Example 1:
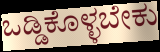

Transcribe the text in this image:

ಒಡ್ಡಿಕೊಳ್ಳಬೇಕು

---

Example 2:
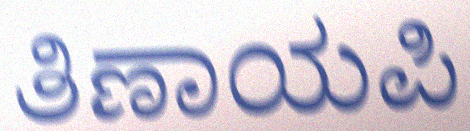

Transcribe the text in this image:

ತಿಣಾಯಪಿ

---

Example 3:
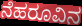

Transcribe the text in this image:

ನೆಹರೂವಿನ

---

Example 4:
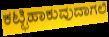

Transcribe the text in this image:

ಕಟ್ಟಿಹಾಕುವುದಾಗಲಿ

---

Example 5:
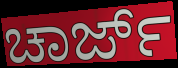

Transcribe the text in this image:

ಚಾರ್ಜ್